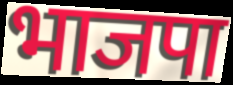
भाजपा